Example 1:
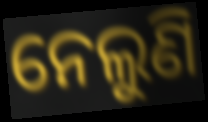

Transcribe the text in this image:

ନେଲୁଣି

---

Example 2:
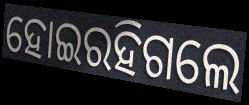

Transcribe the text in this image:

ହୋଇରହିଗଲେ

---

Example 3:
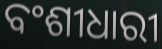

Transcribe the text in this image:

ବଂଶୀଧାରୀ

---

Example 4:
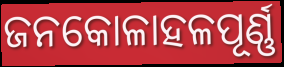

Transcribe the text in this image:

ଜନକୋଳାହଳପୂର୍ଣ୍ଣ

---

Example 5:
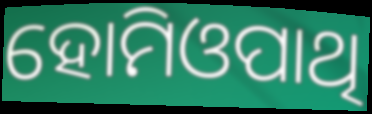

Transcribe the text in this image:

ହୋମିଓପାଥି